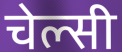
चेल्सी